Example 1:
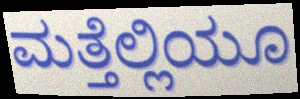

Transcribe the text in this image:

ಮತ್ತೆಲ್ಲಿಯೂ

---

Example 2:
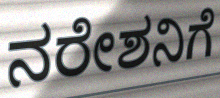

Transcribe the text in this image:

ನರೇಶನಿಗೆ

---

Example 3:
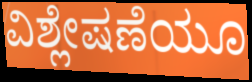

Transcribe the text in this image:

ವಿಶ್ಲೇಷಣೆಯೂ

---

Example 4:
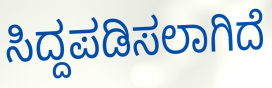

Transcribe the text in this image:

ಸಿದ್ದಪಡಿಸಲಾಗಿದೆ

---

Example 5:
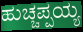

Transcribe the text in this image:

ಹುಚ್ಚಪ್ಪಯ್ಯ